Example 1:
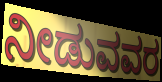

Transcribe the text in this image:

ನೀಡುವವರ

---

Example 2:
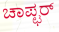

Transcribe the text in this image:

ಚಾಪ್ಟರ್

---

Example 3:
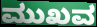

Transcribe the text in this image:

ಮುಖವ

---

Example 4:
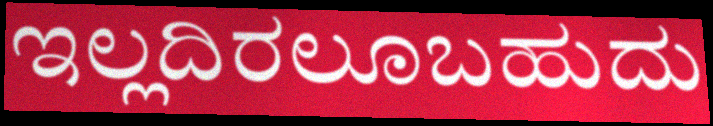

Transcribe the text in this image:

ಇಲ್ಲದಿರಲೂಬಹುದು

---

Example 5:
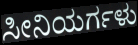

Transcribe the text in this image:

ಸೀನಿಯರ್ಗಳು